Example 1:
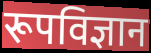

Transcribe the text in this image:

रूपविज्ञान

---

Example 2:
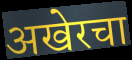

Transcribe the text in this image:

अखेरचा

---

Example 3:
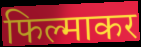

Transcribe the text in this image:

फिल्माकर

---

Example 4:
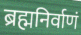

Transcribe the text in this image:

ब्रह्मनिर्वाणं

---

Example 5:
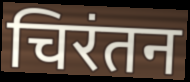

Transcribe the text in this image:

चिरंतन